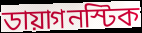
ডায়াগনস্টিক